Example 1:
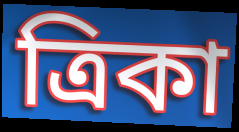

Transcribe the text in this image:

ত্রিকা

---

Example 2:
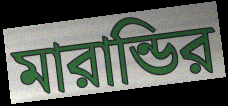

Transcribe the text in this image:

মারান্ডির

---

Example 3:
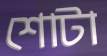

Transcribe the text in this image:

শোটা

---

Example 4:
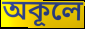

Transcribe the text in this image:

অকূলে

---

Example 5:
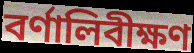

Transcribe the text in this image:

বর্ণালিবীক্ষণ